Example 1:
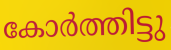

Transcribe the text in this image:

കോർത്തിട്ടു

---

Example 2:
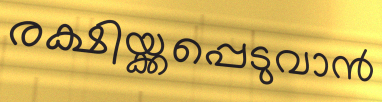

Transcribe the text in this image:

രക്ഷിയ്ക്കപ്പെടുവാൻ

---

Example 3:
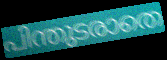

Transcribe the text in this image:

പിന്തുടരാതെ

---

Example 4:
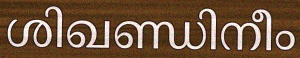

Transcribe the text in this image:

ശിഖണ്ഡിനീം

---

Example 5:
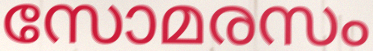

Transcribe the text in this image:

സോമരസം